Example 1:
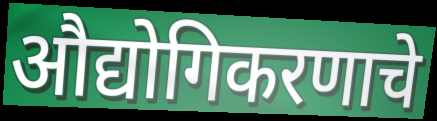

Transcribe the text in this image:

औद्योगिकरणाचे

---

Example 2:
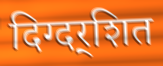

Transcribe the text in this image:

दिग्दर्शित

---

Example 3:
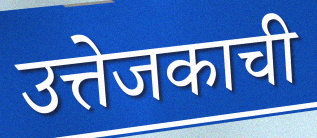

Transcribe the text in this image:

उत्तेजकाची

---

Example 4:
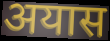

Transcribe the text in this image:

अयास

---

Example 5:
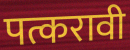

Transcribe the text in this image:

पत्करावी